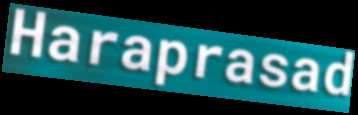
Haraprasad